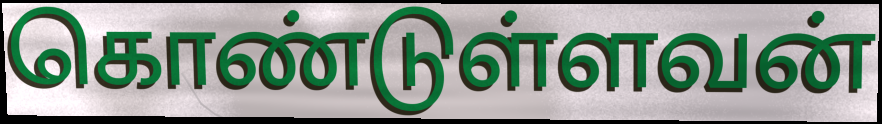
கொண்டுள்ளவன்